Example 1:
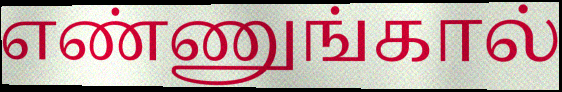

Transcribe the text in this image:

எண்ணுங்கால்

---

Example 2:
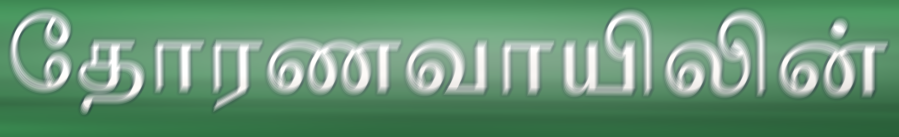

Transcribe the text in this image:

தோரணவாயிலின்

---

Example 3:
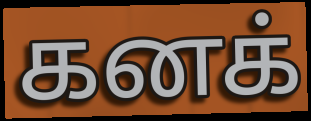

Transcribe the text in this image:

கனக்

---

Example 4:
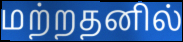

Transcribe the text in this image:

மற்றதனில்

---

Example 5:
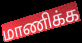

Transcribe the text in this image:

மாணிக்க